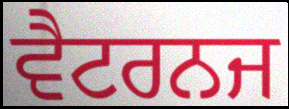
ਵੈਟਰਨਜ